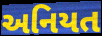
અનિયત